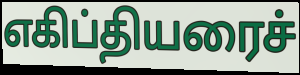
எகிப்தியரைச்